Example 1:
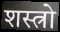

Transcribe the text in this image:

शस्त्रो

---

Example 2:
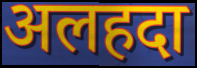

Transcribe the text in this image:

अलहदा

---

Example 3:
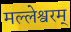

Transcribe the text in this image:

मल्लेश्वरम्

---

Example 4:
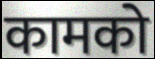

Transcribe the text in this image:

कामको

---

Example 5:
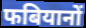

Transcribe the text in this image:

फबियानों